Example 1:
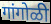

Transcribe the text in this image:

गांगोळी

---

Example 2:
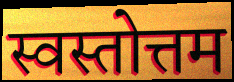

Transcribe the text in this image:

स्वस्तोत्तम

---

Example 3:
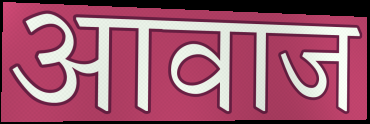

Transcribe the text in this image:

आवाज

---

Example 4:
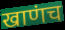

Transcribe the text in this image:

खाणंच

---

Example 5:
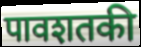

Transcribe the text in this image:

पावशतकी